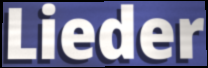
Lieder